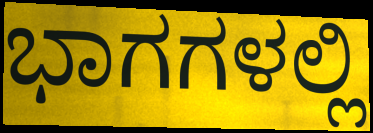
ಭಾಗಗಳಲ್ಲಿ